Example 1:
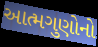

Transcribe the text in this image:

આત્મગુણોનો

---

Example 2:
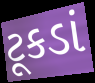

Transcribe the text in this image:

ટૂકડાં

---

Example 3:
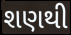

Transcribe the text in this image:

શણથી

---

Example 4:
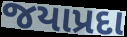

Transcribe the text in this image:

જયાપ્રદા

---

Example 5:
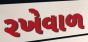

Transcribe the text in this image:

રખેવાળ